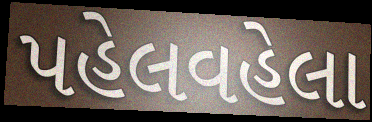
પહેલવહેલા